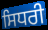
ਸਿਧਰੀ